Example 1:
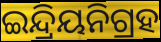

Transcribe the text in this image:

ଇନ୍ଦ୍ରିୟନିଗ୍ରହ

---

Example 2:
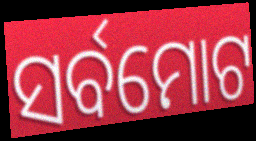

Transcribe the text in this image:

ସର୍ବମୋଟ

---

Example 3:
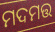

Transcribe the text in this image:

ମଦମତ୍ତ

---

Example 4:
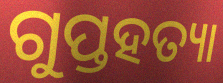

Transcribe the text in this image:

ଗୁପ୍ତହତ୍ୟା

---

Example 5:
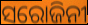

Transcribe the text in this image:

ସରୋଜିନୀ